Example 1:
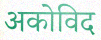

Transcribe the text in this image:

अकोविद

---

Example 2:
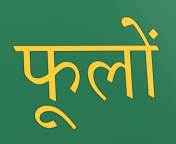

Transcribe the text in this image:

फूलों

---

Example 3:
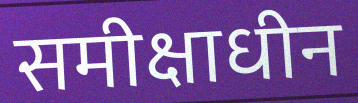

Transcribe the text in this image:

समीक्षाधीन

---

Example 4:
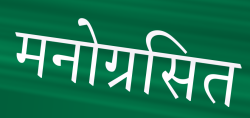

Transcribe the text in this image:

मनोग्रसित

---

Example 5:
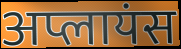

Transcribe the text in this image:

अप्‍लायंस